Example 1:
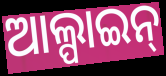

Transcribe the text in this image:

ଆଲ୍ପାଇନ୍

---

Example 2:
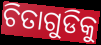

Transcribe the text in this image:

ଚିତାଗୁଡିକୁ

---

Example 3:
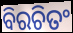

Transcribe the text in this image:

ବିରଚିତଂ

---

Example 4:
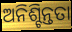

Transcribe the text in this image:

ଅନିଶ୍ଚିନ୍ତତା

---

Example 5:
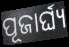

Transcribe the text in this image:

ପୂଜାର୍ଘ୍ୟ